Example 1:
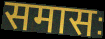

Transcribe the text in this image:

समासः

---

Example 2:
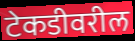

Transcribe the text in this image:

टेकडीवरील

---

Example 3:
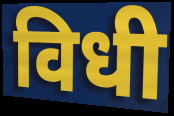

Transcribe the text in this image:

विधी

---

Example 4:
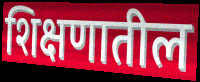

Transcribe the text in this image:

शिक्षणातील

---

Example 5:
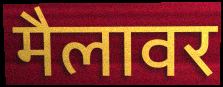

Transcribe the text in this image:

मैलावर